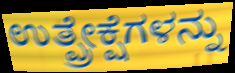
ಉತ್ಪ್ರೇಕ್ಷೆಗಳನ್ನು